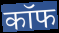
कॉफ